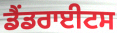
ਡੈਂਡਰਾਈਟਸ